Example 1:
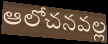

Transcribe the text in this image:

ఆలోచనవల్ల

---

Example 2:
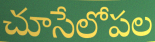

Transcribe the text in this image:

చూసేలోపల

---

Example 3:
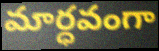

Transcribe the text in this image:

మార్ధవంగా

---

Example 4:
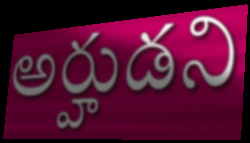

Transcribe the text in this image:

అర్హుడని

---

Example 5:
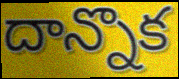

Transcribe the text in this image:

దాన్నొక